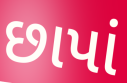
છાપાં